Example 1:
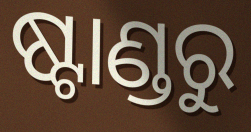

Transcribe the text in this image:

ଷ୍ଟାଣ୍ଡରୁ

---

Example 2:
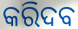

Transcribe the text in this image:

କରିଦବ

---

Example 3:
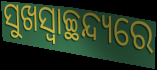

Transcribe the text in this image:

ସୁଖସ୍ଵାଚ୍ଛନ୍ଦ୍ୟରେ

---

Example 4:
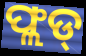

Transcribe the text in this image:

ଫ୍ଲଡ୍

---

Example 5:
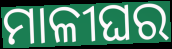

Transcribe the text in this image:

ମାଳୀଘର